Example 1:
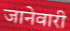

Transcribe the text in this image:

जानेवारी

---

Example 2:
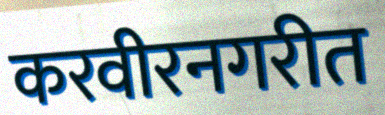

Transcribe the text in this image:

करवीरनगरीत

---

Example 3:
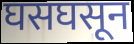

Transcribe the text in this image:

घसघसून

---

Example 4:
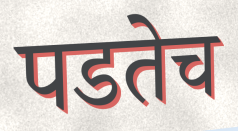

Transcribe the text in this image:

पडतेच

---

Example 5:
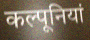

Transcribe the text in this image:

कल्पूनियां